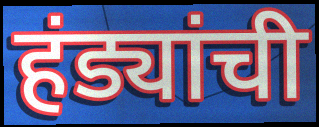
हंड्यांची